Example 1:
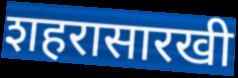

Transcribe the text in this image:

शहरासारखी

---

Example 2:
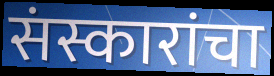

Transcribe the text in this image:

संस्कारांचा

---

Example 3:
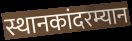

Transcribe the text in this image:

स्थानकांदरम्यान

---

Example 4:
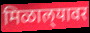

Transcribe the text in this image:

मिळाल्यावर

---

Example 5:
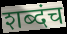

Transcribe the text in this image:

शब्दंच